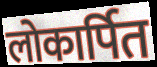
लोकार्पित